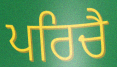
ਪਰਿਚੈ